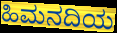
ಹಿಮನದಿಯ